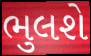
ભુલશે